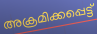
അക്രമിക്കപ്പെട്ട്